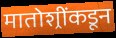
मातोश्रींकडून